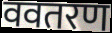
ववतरण